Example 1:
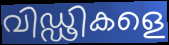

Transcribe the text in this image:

വിഡ്ഢികളെ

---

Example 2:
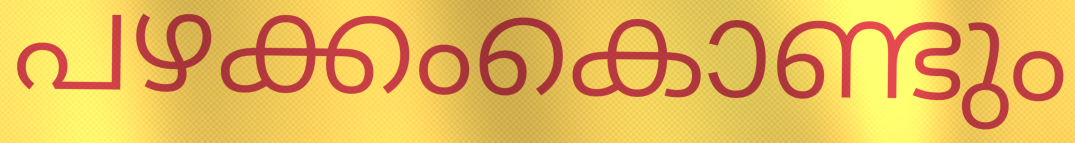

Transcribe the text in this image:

പഴക്കംകൊണ്ടും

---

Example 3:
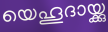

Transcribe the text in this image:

യെഹൂദായ്ക്കു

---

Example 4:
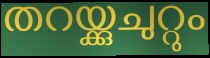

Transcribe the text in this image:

തറയ്ക്കുചുറ്റും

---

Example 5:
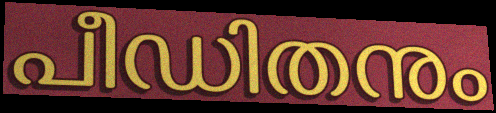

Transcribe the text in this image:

പീഡിതനും